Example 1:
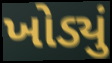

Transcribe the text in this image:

ખોડ્યું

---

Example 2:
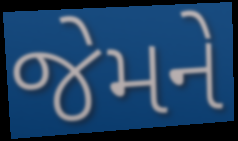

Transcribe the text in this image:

જેમને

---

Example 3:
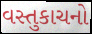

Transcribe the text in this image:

વસ્તુકાચનો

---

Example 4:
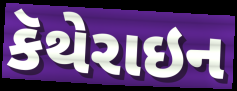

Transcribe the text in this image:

કૅથેરાઇન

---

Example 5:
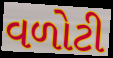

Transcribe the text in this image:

વળોટી